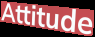
Attitude